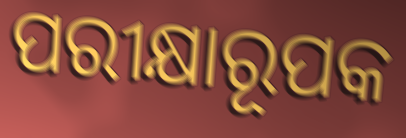
ପରୀକ୍ଷାରୂପକ